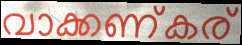
വാക്കണ്കര്